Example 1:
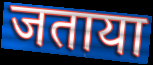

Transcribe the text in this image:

जताया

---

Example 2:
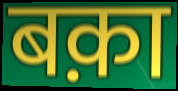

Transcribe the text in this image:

बक़ा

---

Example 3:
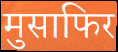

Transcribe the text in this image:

मुसाफिर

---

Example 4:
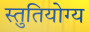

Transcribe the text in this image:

स्तुतियोग्य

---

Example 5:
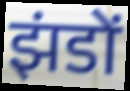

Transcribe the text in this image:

झंडों